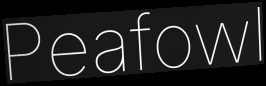
Peafowl